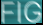
FIG